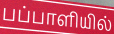
பப்பாளியில்